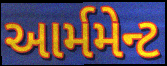
આર્મમેન્ટ